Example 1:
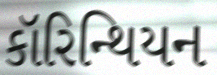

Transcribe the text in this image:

કૉરિન્થિયન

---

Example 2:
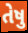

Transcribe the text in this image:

તેષુ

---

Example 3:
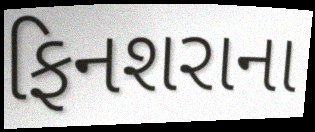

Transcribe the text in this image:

ફિનશરાના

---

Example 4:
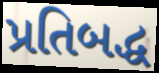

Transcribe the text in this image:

પ્રતિબદ્ધ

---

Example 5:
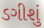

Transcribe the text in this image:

ડગીશું